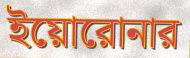
ইয়োরোনার